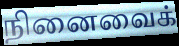
நினைவைக்